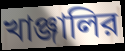
খাঞ্জালির